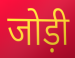
जोड़ी